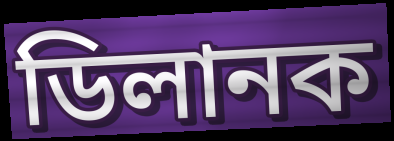
ডিলানক